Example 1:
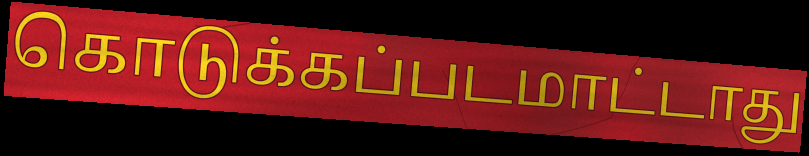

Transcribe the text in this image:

கொடுக்கப்படமாட்டாது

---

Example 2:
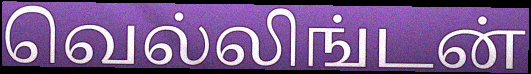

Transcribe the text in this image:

வெல்லிங்டன்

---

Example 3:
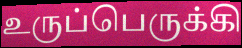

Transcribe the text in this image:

உருப்பெருக்கி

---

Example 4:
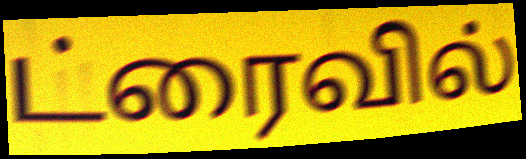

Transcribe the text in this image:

ட்ரைவில்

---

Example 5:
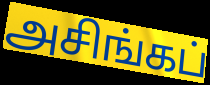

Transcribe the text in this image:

அசிங்கப்